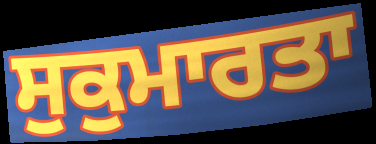
ਸੁਕੁਮਾਰਤਾ